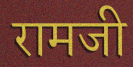
रामजी